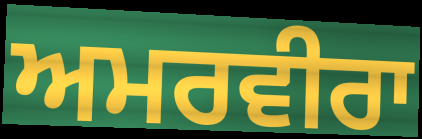
ਅਮਰਵੀਰਾ